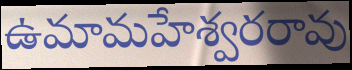
ఉమామహేశ్వరరావు